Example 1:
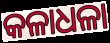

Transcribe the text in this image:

କଳାଧଳା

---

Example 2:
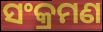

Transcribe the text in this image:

ସଂକ୍ରମଣ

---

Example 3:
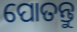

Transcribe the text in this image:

ପୋତନ୍ତୁ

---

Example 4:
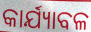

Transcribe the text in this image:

କାର୍ଯ୍ୟାବଳ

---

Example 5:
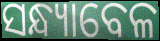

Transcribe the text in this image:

ସନ୍ଧ୍ୟାବେଳ